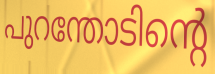
പുറന്തോടിന്റെ